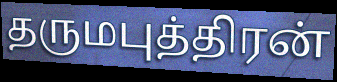
தருமபுத்திரன்